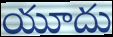
యూదు